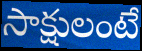
సాక్షులంటే